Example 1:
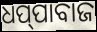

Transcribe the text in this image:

ଧପ୍‌ପାବାଜ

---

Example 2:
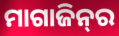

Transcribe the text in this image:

ମାଗାଜିନ୍‍ର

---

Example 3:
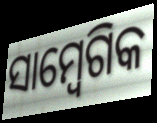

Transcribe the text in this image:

ସାମ୍ବେଗିକ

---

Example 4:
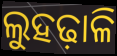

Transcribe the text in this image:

ଲୁହଢ଼ାଳି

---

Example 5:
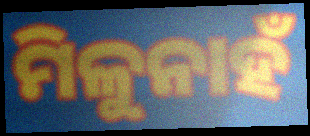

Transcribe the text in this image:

ମିଳୁନାହଁ